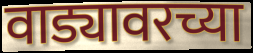
वाड्यावरच्या